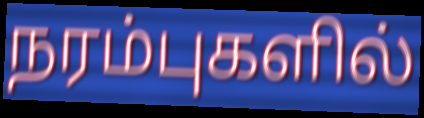
நரம்புகளில்